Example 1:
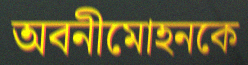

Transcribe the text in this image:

অবনীমোহনকে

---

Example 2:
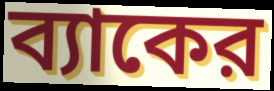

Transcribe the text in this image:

ব্যাকের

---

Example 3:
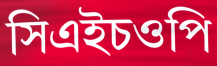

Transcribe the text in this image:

সিএইচওপি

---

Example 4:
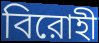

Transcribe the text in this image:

বিরোহী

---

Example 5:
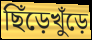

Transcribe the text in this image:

ছিঁড়েখুঁড়ে